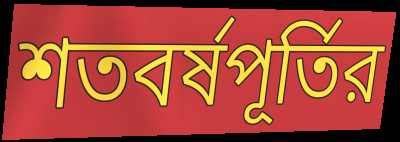
শতবর্ষপূর্তির